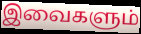
இவைகளும்